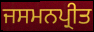
ਜਸਮਨਪ੍ਰੀਤ